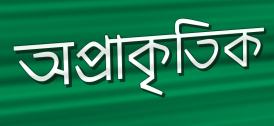
অপ্রাকৃতিক